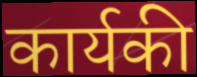
कार्यकी